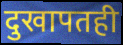
दुखापतही